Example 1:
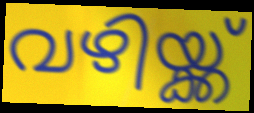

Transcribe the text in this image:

വഴിയ്ക്ക്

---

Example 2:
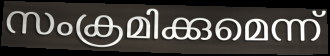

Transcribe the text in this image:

സംക്രമിക്കുമെന്ന്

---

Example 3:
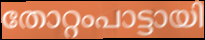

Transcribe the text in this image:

തോറ്റംപാട്ടായി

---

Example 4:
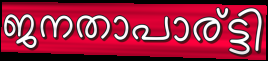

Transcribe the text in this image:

ജനതാപാര്ട്ടി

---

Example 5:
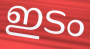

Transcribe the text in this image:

ഇടം